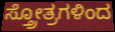
ಸ್ತ್ರೋತ್ರಗಳಿಂದ